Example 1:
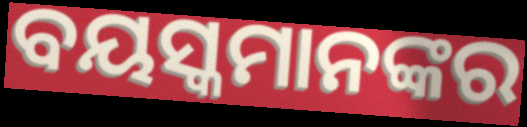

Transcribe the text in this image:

ବୟସ୍କମାନଙ୍କର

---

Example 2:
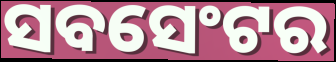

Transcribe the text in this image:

ସବସେଂଟର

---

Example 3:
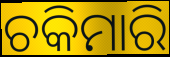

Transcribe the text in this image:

ଚକିମାରି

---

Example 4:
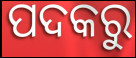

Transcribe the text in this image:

ପଦକରୁ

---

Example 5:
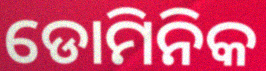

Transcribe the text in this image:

ଡୋମିନିକ